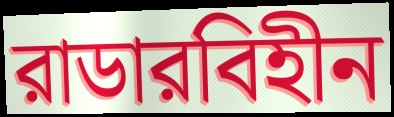
রাডারবিহীন